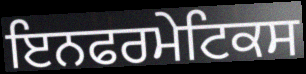
ਇਨਫਰਮੇਟਿਕਸ